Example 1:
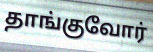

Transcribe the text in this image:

தாங்குவோர்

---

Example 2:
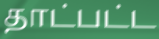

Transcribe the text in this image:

தாட்பட்ட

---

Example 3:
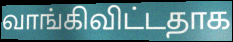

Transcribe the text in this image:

வாங்கிவிட்டதாக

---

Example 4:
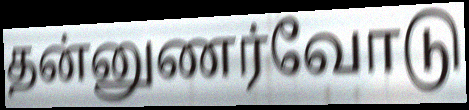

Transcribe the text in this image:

தன்னுணர்வோடு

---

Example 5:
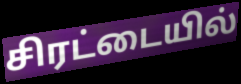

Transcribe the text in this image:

சிரட்டையில்